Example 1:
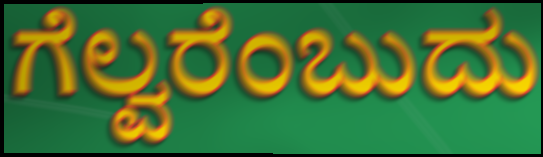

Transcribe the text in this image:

ಗೆಲ್ವರೆಂಬುದು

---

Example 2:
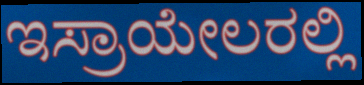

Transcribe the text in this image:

ಇಸ್ರಾಯೇಲರಲ್ಲಿ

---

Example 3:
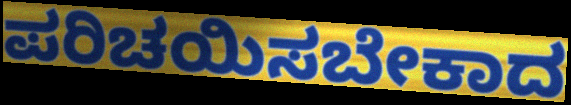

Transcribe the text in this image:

ಪರಿಚಯಿಸಬೇಕಾದ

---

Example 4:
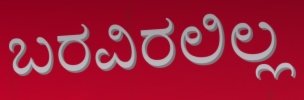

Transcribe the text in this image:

ಬರವಿರಲಿಲ್ಲ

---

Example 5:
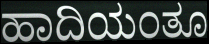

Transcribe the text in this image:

ಹಾದಿಯಂತೂ